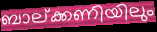
ബാല്ക്കണിയിലും